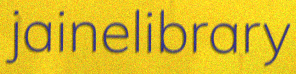
jainelibrary